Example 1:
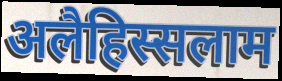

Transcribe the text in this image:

अलैहिस्सलाम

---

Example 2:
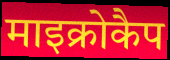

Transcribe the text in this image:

माइक्रोकैप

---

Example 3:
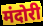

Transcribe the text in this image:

मंदोरी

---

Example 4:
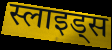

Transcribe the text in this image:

स्लाइड्स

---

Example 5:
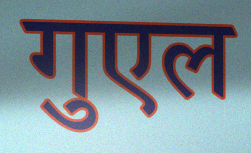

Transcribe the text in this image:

गुएल